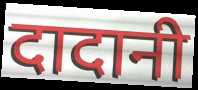
दादानी